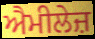
ਐਮੀਲੇਜ਼